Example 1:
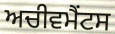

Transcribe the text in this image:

ਅਚੀਵਮੈਂਟਸ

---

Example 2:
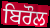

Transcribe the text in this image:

ਬਿਰੌਲ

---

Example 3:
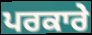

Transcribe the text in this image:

ਪਰਕਾਰੇ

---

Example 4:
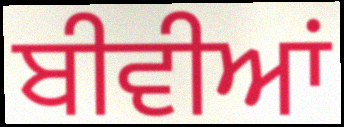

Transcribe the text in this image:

ਬੀਵੀਆਂ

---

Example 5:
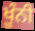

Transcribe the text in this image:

ਖੂੰਨੀ